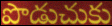
పొడుచుకు